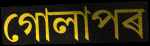
গোলাপৰ